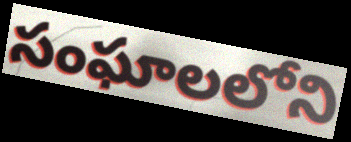
సంఘాలలోని